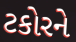
ટકોરને